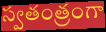
స్వతంత్రంగా